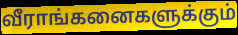
வீராங்கனைகளுக்கும்